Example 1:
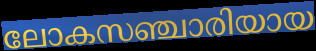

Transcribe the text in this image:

ലോകസഞ്ചാരിയായ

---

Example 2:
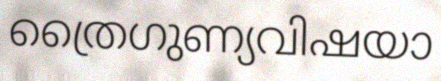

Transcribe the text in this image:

ത്രൈഗുണ്യവിഷയാ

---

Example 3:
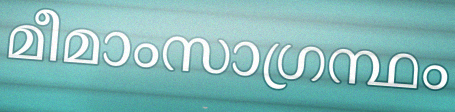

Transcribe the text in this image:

മീമാംസാഗ്രന്ഥം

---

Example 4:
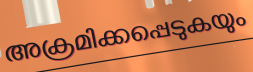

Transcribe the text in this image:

അക്രമിക്കപ്പെടുകയും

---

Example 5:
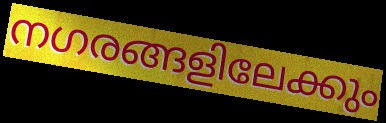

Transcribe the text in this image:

നഗരങ്ങളിലേക്കും